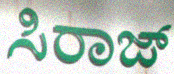
ಸಿರಾಜ್